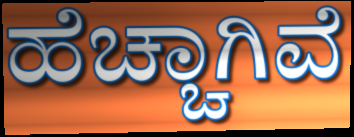
ಹೆಚ್ಚಾಗಿವೆ